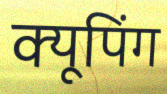
क्यूपिंग